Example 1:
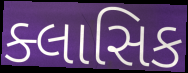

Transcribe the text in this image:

ક્લાસિક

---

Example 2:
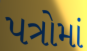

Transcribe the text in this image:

પત્રોમાં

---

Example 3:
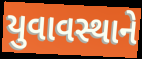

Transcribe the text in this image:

યુવાવસ્થાને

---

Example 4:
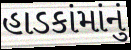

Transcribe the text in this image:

હાડકાંમાંનું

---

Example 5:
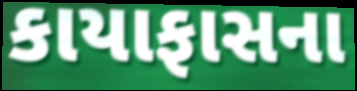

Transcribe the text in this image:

કાયાફાસના